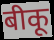
बीकू